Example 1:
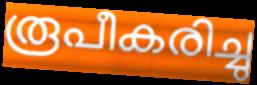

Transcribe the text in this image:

രൂപീകരിച്ചു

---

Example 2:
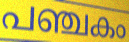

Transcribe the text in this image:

പഞ്ചകം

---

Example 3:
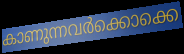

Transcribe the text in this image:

കാണുന്നവർക്കൊക്കെ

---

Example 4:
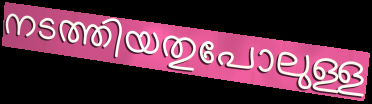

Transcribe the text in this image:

നടത്തിയതുപോലുള്ള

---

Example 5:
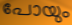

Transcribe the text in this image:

പോയും